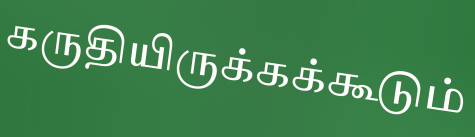
கருதியிருக்கக்கூடும்